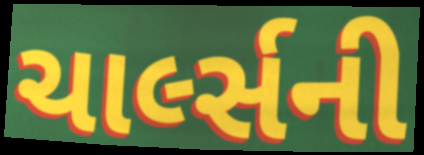
ચાર્લ્સની